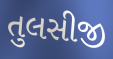
તુલસીજી